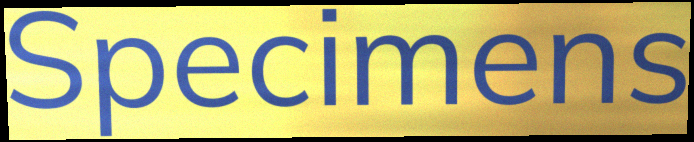
Specimens